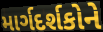
માર્ગદર્શકોને